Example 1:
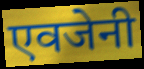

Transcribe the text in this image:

एवजेनी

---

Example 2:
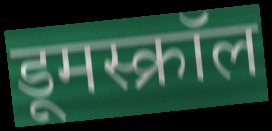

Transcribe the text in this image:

डूमस्क्रॉल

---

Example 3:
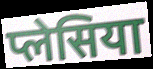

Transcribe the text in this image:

प्लेसिया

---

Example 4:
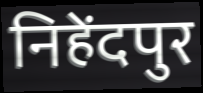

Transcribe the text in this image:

निहेंदपुर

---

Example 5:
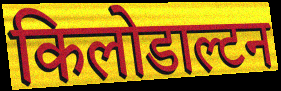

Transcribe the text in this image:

किलोडाल्टन